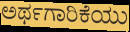
ಅರ್ಥಗಾರಿಕೆಯು